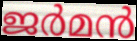
ജർമൻ